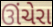
ઊંચેરા